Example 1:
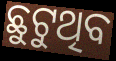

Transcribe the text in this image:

ଛୁଟୁଥିବ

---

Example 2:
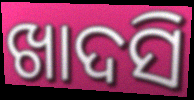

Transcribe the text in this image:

ଖାଦସି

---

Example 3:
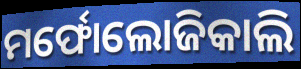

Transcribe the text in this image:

ମର୍ଫୋଲୋଜିକାଲି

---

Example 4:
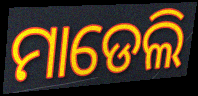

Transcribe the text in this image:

ମାଡେଲି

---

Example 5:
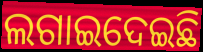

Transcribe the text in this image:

ଲଗାଇଦେଇଛି